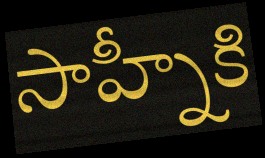
సాహ్నీకి